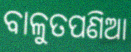
ବାଳୁତପଣିଆ